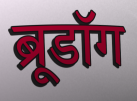
ब्रूडॉग